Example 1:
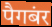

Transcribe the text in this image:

पैगबंर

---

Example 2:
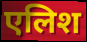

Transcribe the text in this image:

एलिश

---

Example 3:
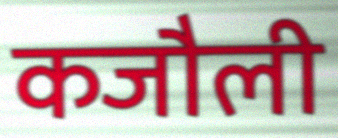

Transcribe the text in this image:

कजौली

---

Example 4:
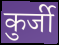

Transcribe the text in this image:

कुर्जी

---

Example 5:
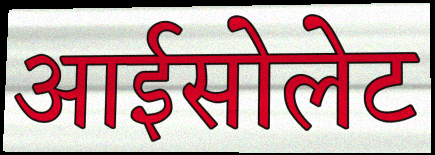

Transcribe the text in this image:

आईसोलेट